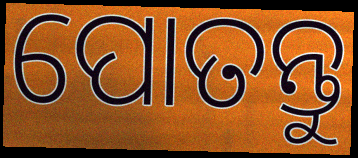
ପୋତନ୍ତୁ